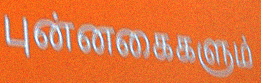
புன்னகைகளும்